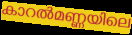
കാറൽമണ്ണയിലെ